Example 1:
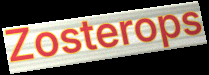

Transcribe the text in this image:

Zosterops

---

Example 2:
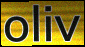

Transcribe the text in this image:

oliv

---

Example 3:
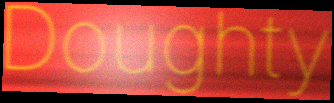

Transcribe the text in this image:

Doughty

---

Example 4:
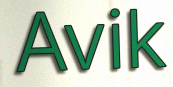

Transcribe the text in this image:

Avik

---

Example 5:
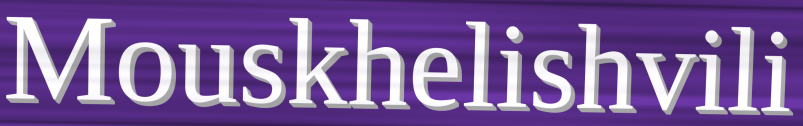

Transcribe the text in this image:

Mouskhelishvili